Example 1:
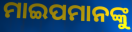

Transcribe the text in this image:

ମାଇପମାନଙ୍କୁ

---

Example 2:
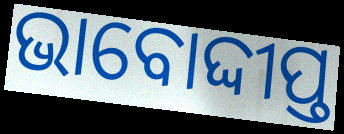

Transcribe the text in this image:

ଭାବୋଦ୍ଦୀପ୍ତ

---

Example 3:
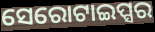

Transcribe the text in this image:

ସେରୋଟାଇପ୍ସର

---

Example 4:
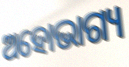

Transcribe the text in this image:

ଅହୋଭାଗ୍ୟ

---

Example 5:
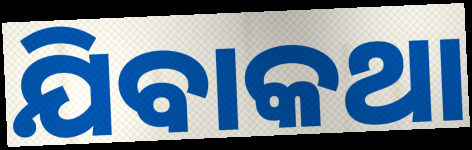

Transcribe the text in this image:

ଯିବାକଥା